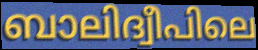
ബാലിദ്വീപിലെ